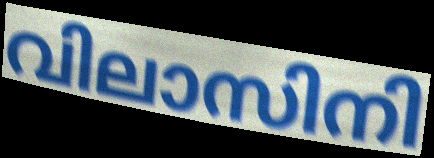
വിലാസിനി